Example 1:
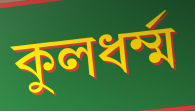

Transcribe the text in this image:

কুলধর্ম্ম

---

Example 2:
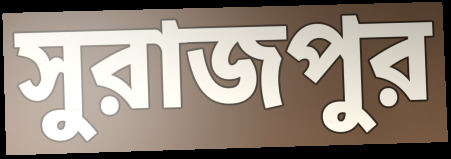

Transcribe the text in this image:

সুরাজপুর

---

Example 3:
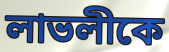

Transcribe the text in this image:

লাভলীকে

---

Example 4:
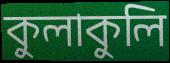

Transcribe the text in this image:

কুলাকুলি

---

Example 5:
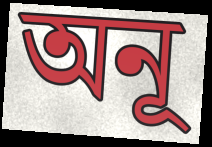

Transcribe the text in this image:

অনূ